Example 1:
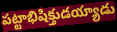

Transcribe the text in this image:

పట్టాభిషిక్తుడయ్యాడు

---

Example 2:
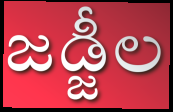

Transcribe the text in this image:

జడ్జీల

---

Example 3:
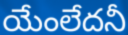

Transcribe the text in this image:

యేంలేదనీ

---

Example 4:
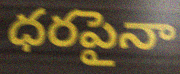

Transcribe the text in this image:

ధరపైనా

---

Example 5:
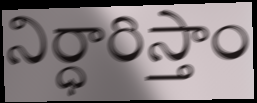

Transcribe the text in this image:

నిర్ధారిస్తాం